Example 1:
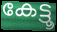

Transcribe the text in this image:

കേട്ടൂ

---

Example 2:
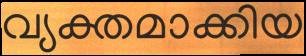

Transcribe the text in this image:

വ്യക്തമാക്കിയ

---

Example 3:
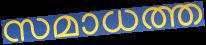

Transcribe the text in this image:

സമാധത്ത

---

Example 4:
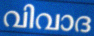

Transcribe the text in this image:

വിവാദ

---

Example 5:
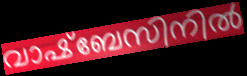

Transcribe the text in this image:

വാഷ്ബേസിനിൽ